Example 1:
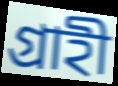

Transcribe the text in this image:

গ্রাহী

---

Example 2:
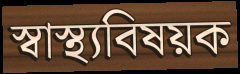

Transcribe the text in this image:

স্বাস্থ্যবিষয়ক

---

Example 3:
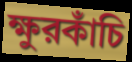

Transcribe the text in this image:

ক্ষুরকাঁচি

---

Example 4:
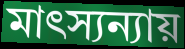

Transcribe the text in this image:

মাৎস্যন্যায়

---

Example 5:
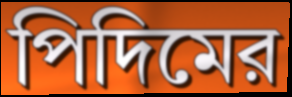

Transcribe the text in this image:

পিদিমের